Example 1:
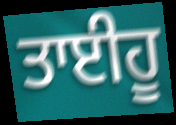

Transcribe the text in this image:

ਤਾਈਹੂ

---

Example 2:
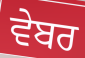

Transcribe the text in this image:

ਵੇਬਰ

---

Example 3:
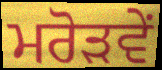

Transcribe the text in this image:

ਮਰੋੜਵੇਂ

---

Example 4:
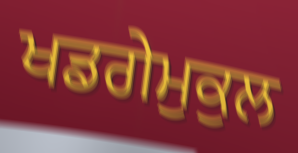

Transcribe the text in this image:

ਖਡਗੇਮੁਕੁਲ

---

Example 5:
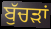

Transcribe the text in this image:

ਬੁੱਚੜਾਂ